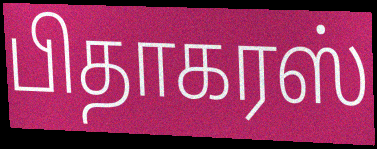
பிதாகரஸ்